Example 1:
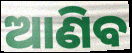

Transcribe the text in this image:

ଆଣିବ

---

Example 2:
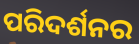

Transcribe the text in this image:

ପରିଦର୍ଶନର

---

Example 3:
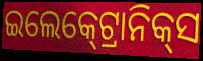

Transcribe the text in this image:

ଇଲେକ୍‍ଟ୍ରୋନିକ୍‍ସ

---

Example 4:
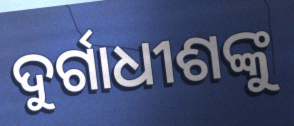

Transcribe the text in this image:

ଦୁର୍ଗାଧୀଶଙ୍କୁ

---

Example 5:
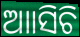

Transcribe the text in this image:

ଆାସିଚି